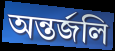
অন্তর্জলি